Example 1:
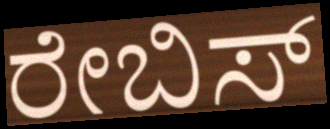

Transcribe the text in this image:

ರೇಬಿಸ್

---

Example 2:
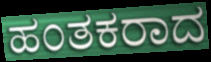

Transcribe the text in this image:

ಹಂತಕರಾದ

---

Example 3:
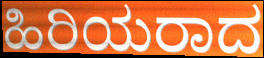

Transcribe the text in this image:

ಹಿರಿಯರಾದ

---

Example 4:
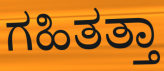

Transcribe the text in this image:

ಗಹಿತತ್ತಾ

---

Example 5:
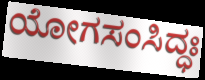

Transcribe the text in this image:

ಯೋಗಸಂಸಿದ್ಧಃ